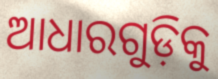
ଆଧାରଗୁଡ଼ିକୁ